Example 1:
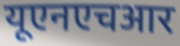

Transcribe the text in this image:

यूएनएचआर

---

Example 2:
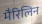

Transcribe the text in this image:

मैरिलिन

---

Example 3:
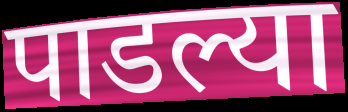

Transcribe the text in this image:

पाडल्या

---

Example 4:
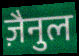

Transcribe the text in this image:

ज़ैनुल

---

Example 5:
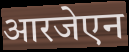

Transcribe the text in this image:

आरजेएन